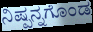
ನಿಷ್ಪನ್ನಗೊಂಡ